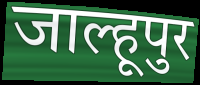
जाल्हूपुर